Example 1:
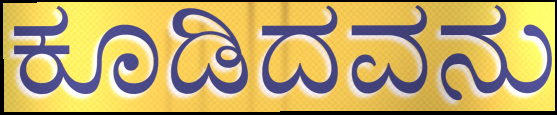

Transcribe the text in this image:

ಕೂಡಿದವನು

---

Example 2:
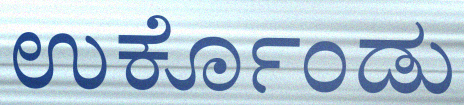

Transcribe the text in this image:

ಉರ್ಕೊಂಡು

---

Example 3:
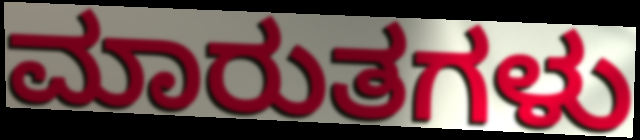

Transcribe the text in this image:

ಮಾರುತಗಳು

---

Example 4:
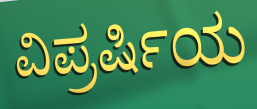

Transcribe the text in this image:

ವಿಪ್ರರ್ಷಿಯ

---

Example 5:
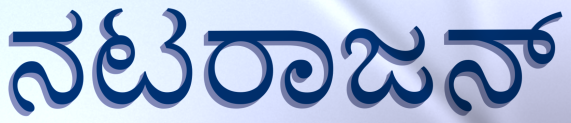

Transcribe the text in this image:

ನಟರಾಜನ್